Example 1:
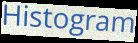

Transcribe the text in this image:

Histogram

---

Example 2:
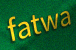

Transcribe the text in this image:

fatwa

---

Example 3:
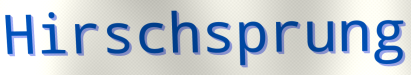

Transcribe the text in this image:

Hirschsprung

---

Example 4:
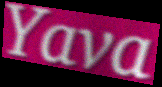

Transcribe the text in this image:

Yava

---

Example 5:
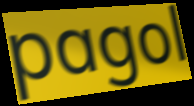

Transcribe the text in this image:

pagol